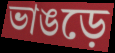
ভাঙড়ে